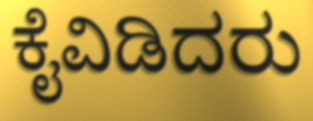
ಕೈವಿಡಿದರು